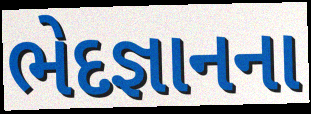
ભેદજ્ઞાનના